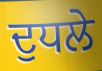
ਦੁਧਲੇ